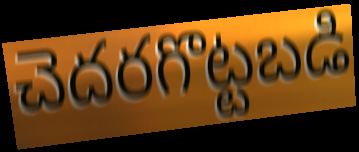
చెదరగొట్టబడి